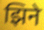
झिने